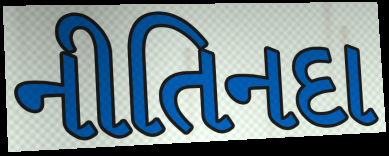
નીતિનદા